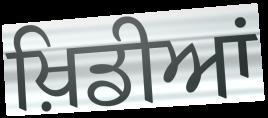
ਖ਼ਿਡੀਆਂ